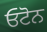
ਓਟੋਨ